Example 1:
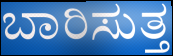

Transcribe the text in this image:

ಬಾರಿಸುತ್ತ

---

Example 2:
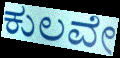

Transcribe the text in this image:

ಕುಲವೇ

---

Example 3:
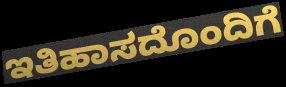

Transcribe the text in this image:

ಇತಿಹಾಸದೊಂದಿಗೆ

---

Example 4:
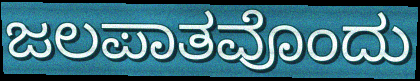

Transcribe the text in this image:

ಜಲಪಾತವೊಂದು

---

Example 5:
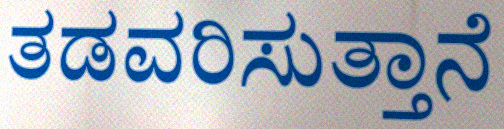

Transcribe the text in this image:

ತಡವರಿಸುತ್ತಾನೆ